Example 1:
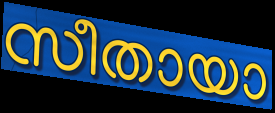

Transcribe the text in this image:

സീതായാ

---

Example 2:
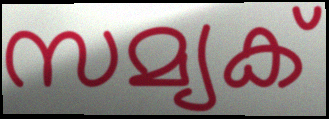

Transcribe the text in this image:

സമ്യക്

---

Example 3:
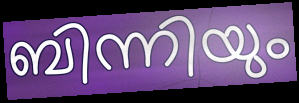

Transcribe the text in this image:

ബിന്നിയും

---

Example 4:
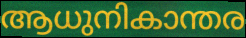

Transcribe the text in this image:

ആധുനികാന്തര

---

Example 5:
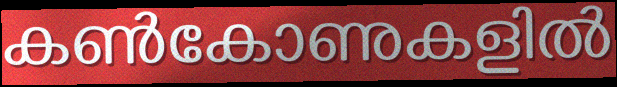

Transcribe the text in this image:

കൺകോണുകളിൽ